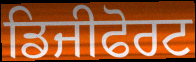
ਡਿਜੀਫੋਰਟ